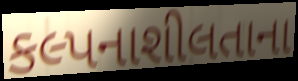
કલ્પનાશીલતાના